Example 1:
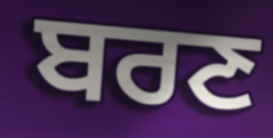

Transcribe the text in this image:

ਬਰਣ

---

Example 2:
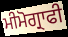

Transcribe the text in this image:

ਮੀਮੋਗ੍ਰਾਫੀ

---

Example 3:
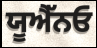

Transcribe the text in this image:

ਯੂਐੱਨਓ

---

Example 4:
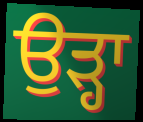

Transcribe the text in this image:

ਉੜ੍ਹਾ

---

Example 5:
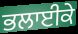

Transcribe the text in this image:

ਭਲਾਈਕੇ